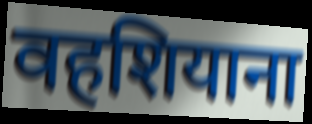
वहशियाना